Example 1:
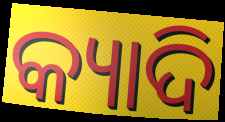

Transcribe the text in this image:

କ୍ୟାଦି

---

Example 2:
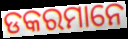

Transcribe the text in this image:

ଡକରମାନେ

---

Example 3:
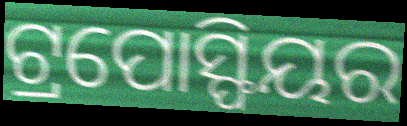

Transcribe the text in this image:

ଟ୍ରପୋସ୍ଫିୟର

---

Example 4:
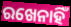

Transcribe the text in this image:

ରଖେନାହିଁ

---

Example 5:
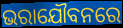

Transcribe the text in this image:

ଭରାଯୌବନରେ